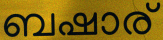
ബഷാര്